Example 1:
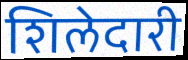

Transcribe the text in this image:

शिलेदारी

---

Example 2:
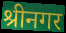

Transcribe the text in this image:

श्रीनगर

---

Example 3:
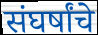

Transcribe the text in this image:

संघर्षांचे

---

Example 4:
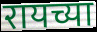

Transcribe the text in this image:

रायच्या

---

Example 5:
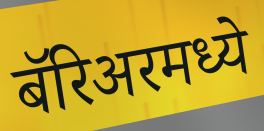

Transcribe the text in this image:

बॅरिअरमध्ये